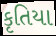
કૃતિયા